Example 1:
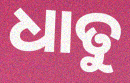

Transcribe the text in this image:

ଧାତୁ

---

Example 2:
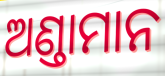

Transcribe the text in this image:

ଅଣ୍ଡାମାନ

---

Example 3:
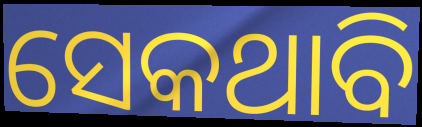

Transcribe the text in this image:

ସେକଥାବି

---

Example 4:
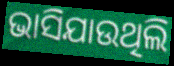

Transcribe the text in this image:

ଭାସିଯାଉଥିଲି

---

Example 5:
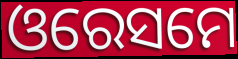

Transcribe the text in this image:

ଓରେସମେ